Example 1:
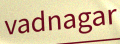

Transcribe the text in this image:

vadnagar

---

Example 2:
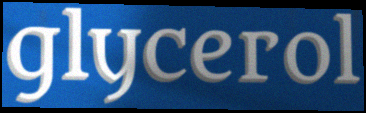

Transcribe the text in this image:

glycerol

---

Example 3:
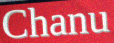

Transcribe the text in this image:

Chanu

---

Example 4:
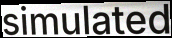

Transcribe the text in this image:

simulated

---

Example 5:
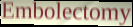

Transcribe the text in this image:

Embolectomy